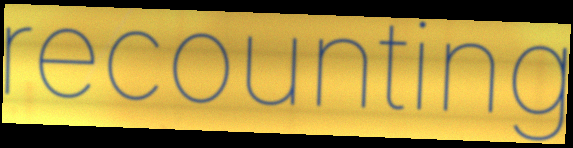
recounting